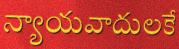
న్యాయవాదులకే